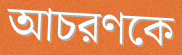
আচরণকে